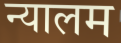
न्यालम